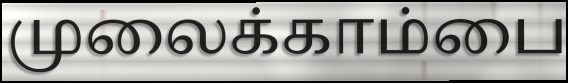
முலைக்காம்பை